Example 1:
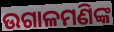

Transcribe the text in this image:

ଉଗାଳମଣିଙ୍କ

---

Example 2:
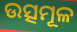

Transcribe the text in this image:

ଉତ୍ସମୂଳ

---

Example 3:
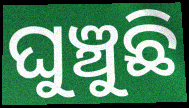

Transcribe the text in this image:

ଘୁଞ୍ଚୁଛି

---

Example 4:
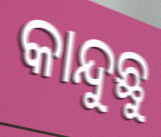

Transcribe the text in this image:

କାନ୍ଦୁଛୁ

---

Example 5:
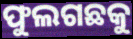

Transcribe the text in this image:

ଫୁଲଗଛକୁ